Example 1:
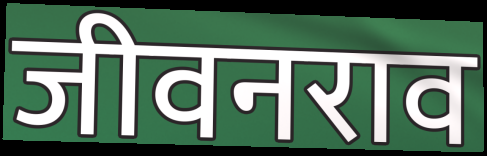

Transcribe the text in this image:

जीवनराव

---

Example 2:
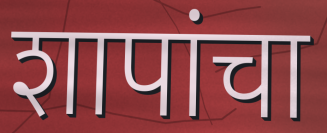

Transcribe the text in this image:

शापांचा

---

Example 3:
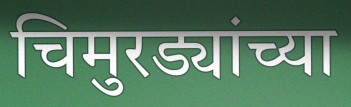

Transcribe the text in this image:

चिमुरड्यांच्या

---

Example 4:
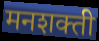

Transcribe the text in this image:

मनशक्ती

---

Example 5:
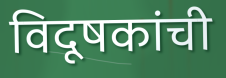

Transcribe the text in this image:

विदूषकांची